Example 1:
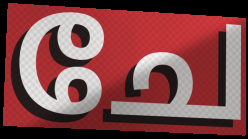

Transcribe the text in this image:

ചേ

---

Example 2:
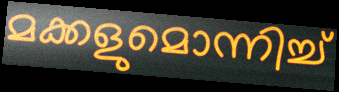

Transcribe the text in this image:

മക്കളുമൊന്നിച്ച്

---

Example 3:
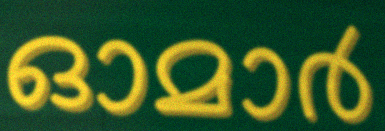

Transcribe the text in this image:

ഓമാർ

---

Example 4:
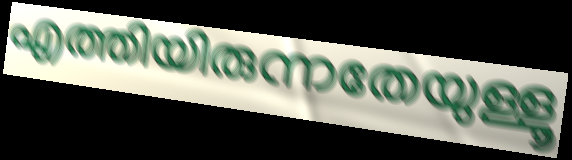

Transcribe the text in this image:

എത്തിയിരുന്നതേയുള്ളൂ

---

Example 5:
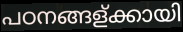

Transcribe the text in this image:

പഠനങ്ങള്ക്കായി